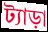
ট্যাড়া